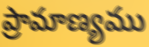
ప్రామాణ్యము